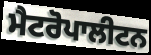
ਮੈਟਰੋਪਾਲੀਟਨ